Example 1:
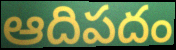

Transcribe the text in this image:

ఆదిపదం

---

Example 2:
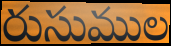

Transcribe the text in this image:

రుసుముల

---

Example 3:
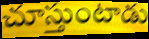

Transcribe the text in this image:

చూస్తుంటాడు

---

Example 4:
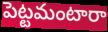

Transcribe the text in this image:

పెట్టమంటారా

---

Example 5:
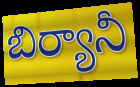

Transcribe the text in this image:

బిర్యానీ